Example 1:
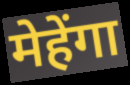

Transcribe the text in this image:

मेहेंगा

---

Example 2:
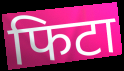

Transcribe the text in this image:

फिटा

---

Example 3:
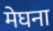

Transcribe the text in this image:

मेघना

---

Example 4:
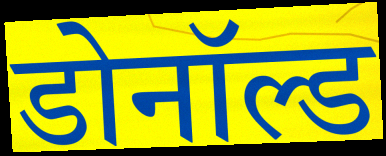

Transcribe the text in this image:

डोनॉल्ड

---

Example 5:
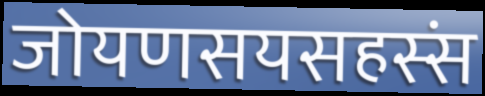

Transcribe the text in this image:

जोयणसयसहस्सं